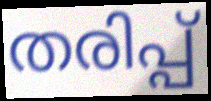
തരിപ്പ്